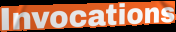
Invocations